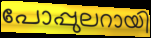
പോപ്പുലറായി